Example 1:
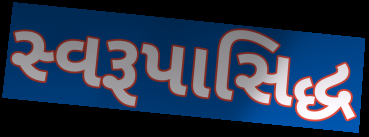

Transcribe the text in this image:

સ્વરૂપાસિદ્ધ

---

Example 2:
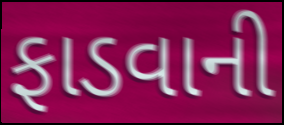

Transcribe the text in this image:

ફાડવાની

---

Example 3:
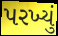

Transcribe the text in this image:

પરખ્યું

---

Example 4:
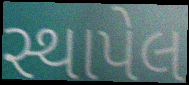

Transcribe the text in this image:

સ્થાપેલ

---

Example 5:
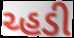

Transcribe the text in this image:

ચ્હડી